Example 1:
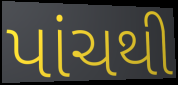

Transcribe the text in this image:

પાંચથી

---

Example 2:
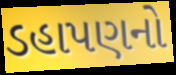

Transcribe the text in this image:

ડહાપણનો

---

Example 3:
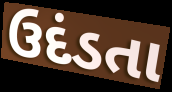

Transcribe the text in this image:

ઉદંડતા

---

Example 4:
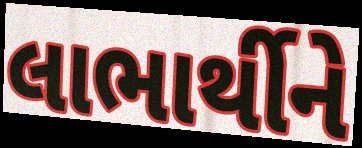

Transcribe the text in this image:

લાભાર્થીને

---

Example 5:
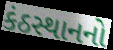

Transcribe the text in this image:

કંઠસ્થાનનો